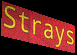
Strays